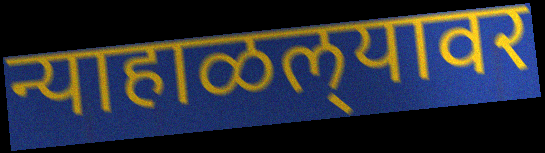
न्याहाळल्यावर